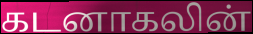
கடனாகலின்